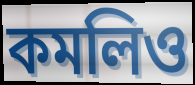
কমলিও